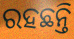
ରହଛନ୍ତି